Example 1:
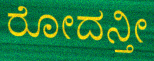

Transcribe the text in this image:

ರೋದನ್ತೀ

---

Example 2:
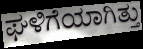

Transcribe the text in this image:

ಘಳಿಗೆಯಾಗಿತ್ತು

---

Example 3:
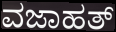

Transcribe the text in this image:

ವಜಾಹತ್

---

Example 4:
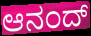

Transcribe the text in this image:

ಆನಂದ್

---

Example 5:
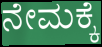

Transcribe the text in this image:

ನೇಮಕ್ಕೆ